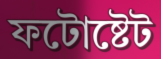
ফটোষ্টেট